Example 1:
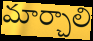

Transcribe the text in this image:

మార్చాలి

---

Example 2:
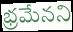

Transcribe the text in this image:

భ్రమేనని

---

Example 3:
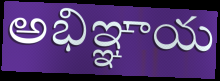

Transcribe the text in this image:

అభిఞ్ఞాయ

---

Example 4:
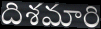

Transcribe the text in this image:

దిశమారి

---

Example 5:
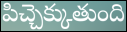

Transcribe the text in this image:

పిచ్చెక్కుతుంది